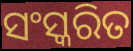
ସଂସ୍କରିତ